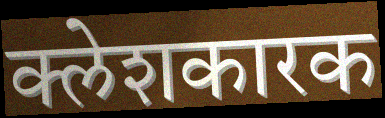
क्लेशकारक